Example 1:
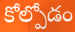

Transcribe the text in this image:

కోల్పోడం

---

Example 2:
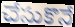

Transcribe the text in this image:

చేసుకొనే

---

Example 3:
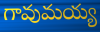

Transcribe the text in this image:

గావుమయ్య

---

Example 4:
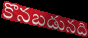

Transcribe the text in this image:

కొనబడునది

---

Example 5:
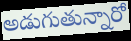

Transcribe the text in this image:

అడుగుతున్నారో